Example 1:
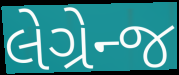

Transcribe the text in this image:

લેગ્રેન્જ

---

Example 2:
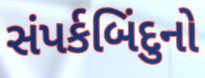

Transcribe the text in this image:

સંપર્કબિંદુનો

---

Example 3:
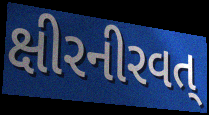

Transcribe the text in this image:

ક્ષીરનીરવત્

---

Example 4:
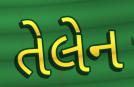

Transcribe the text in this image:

તેલેન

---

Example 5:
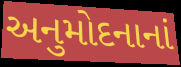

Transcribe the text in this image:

અનુમોદનાનાં